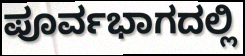
ಪೂರ್ವಭಾಗದಲ್ಲಿ